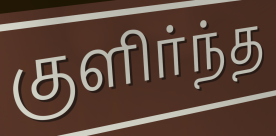
குளிர்ந்த